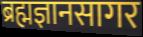
ब्रह्मज्ञानसागर